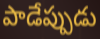
పాడేప్పుడు